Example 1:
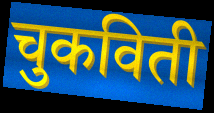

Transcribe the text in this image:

चुकविती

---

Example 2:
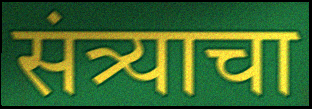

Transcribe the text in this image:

संत्र्याचा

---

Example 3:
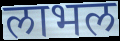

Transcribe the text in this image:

लाभल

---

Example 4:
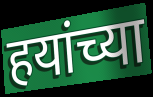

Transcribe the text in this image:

हयांच्या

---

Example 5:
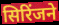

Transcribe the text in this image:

सिरिंजने